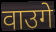
वाउगे